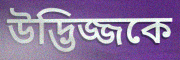
উদ্ভিজ্জকে